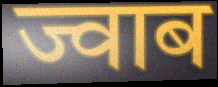
ज्वाब